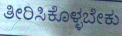
ತೀರಿಸಿಕೊಳ್ಳಬೇಕು